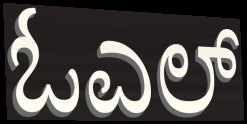
ಓಎಲ್